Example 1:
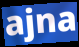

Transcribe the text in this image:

ajna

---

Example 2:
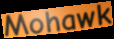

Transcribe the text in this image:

Mohawk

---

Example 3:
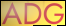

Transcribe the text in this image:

ADG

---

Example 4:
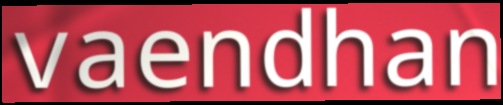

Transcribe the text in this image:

vaendhan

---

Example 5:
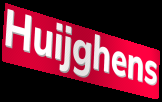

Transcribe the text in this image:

Huijghens